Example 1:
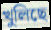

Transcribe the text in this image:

খুলিছে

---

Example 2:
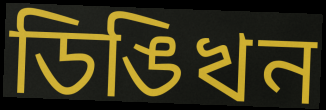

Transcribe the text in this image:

ডিঙিখন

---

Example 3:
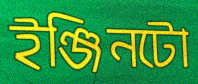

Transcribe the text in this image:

ইঞ্জিনটো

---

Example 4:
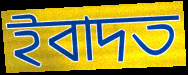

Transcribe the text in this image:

ইবাদত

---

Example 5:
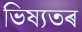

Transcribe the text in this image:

ভিষ্যতৰ